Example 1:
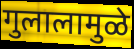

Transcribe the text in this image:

गुलालामुळे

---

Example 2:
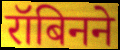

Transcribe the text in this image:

रॉबिनने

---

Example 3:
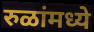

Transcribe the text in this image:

रुळांमध्ये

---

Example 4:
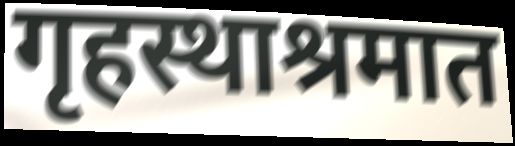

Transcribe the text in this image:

गृहस्थाश्रमात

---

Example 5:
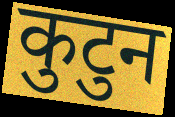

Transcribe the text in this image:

कुटुन